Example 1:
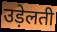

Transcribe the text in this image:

उड़ेलती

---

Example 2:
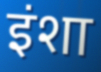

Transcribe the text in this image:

इंशा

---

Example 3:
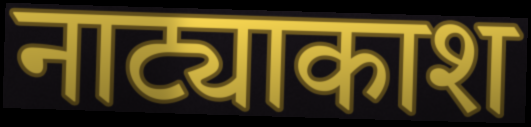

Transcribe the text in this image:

नाट्याकाश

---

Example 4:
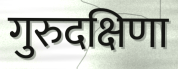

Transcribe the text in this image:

गुरुदक्षिणा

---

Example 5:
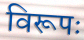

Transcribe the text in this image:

विरूपः